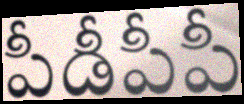
పీడీపీపీ